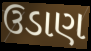
ઉડાણ